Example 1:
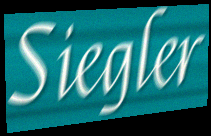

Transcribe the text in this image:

Siegler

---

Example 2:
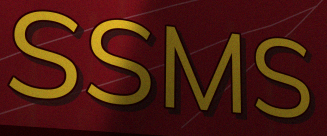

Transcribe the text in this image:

SSMS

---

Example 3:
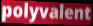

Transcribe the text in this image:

polyvalent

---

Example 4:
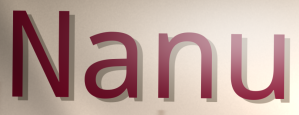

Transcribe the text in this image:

Nanu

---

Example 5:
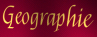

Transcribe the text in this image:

Geographie